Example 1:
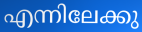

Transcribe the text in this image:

എന്നിലേക്കു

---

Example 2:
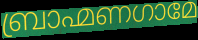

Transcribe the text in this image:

ബ്രാഹ്മണഗാമേ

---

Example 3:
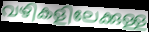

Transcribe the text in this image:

വഴികളിലേക്കുള്ള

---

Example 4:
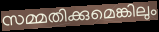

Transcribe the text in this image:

സമ്മതിക്കുമെങ്കിലും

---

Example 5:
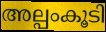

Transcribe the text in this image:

അല്പംകൂടി